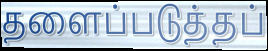
தளைப்படுத்தப்